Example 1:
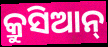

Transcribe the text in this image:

କ୍ରୁସିଆନ୍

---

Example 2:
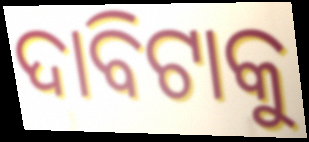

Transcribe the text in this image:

ଦାବିଟାକୁ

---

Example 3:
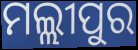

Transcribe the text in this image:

ମଲ୍ଲୀପୁର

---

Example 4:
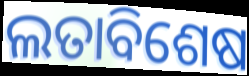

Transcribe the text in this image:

ଲତାବିଶେଷ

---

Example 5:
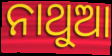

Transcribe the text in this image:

ନାଥୁଆ